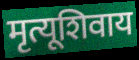
मृत्यूशिवाय